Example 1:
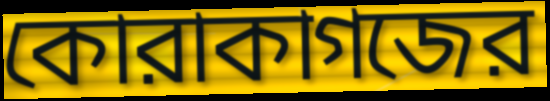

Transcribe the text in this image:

কোরাকাগজের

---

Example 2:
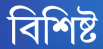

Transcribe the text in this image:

বিশিষ্ট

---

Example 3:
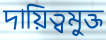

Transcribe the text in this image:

দায়িত্বমুক্ত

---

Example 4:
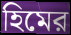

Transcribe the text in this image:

হিমের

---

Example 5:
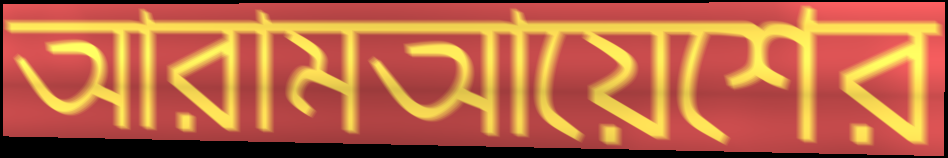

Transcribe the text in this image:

আরামআয়েশের